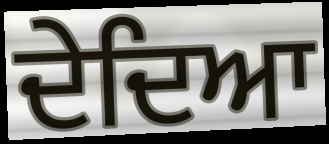
ਦੇਦਿਆ